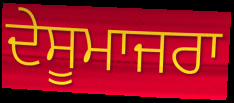
ਦੇਸੂਮਾਜਰਾ